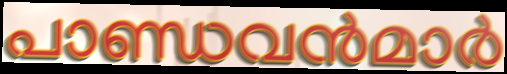
പാണ്ഡവൻമാർ